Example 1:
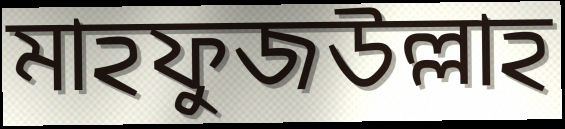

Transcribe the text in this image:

মাহফুজউল্লাহ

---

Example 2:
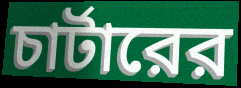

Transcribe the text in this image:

চার্টারের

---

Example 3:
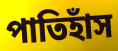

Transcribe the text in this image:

পাতিহাঁস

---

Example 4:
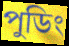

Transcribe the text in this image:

পুডিং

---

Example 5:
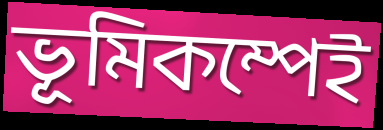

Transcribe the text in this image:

ভূমিকম্পেই